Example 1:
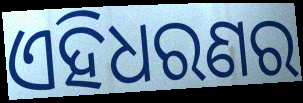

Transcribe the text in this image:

ଏହିଧରଣର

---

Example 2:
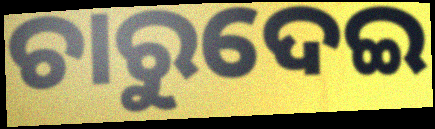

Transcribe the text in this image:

ଚାରୁଦେଇ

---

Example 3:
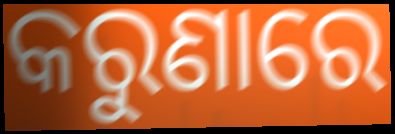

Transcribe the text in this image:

କରୁଣାରେ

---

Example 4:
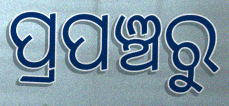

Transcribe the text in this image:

ପ୍ରପଞ୍ଚରୁ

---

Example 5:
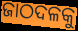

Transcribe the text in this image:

ଜାଠଦଳକୁ